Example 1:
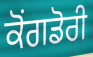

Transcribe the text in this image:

ਕੋਂਗਡੋਰੀ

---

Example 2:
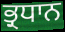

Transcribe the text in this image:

ਭ੍ਰਧਾਨ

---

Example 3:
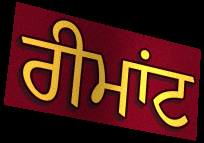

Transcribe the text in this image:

ਰੀਮਾਂਟ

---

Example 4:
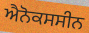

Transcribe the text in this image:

ਐਨੋਕਸਸੀਨ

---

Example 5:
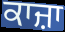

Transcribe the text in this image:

ਕਾਜ਼ਾ